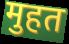
मुहत